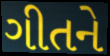
ગીતને